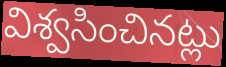
విశ్వసించినట్లు